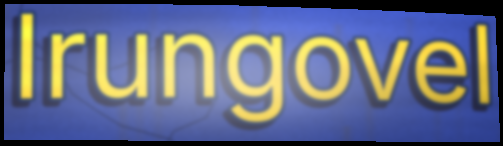
Irungovel